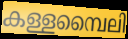
കള്ളമ്പൈലി